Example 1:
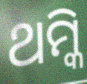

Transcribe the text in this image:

ଥମ୍କି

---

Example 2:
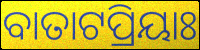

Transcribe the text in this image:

ବାତାଟପ୍ରିୟାଃ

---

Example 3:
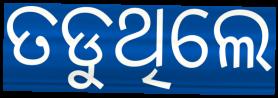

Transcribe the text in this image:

ତଡୁଥିଲେ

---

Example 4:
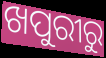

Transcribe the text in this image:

ଖପୁରୀରୁ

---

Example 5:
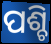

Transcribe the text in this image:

ପଶ୍ଚି